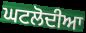
ਘਟਲੋਦੀਆ